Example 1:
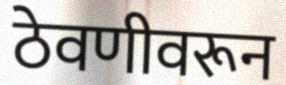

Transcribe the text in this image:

ठेवणीवरून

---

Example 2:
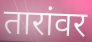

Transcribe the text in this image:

तारांवर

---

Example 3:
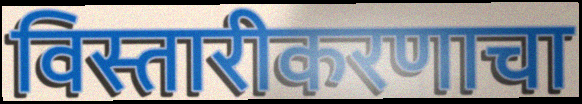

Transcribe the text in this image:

विस्तारीकरणाचा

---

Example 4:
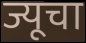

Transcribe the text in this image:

ज्यूचा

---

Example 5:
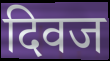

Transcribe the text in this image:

दिवज